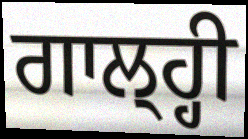
ਗਾਲ੍ਹ੍ਹੀ